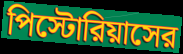
পিস্টোরিয়াসের